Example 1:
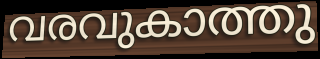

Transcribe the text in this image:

വരവുകാത്തു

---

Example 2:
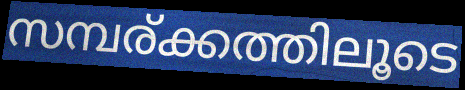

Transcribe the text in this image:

സമ്പര്ക്കത്തിലൂടെ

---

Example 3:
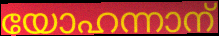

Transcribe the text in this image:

യോഹന്നാന്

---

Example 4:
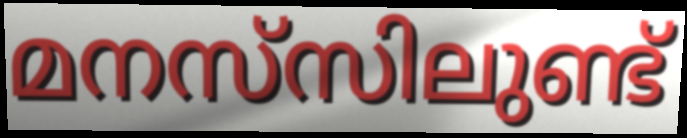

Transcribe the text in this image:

മനസ്‌സിലുണ്ട്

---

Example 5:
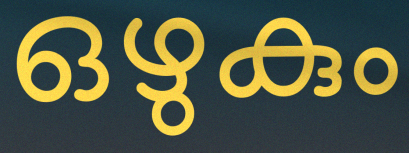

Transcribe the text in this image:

ഒഴുകും